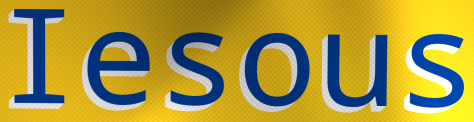
Iesous